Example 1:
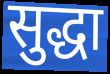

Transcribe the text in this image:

सुद्धा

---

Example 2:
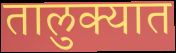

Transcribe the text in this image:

तालुक्यात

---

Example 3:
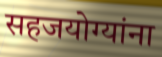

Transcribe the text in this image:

सहजयोग्यांना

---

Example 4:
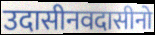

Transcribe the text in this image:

उदासीनवदासीनो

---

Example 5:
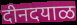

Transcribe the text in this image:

दीनदयाळ